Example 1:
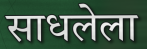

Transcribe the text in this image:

साधलेला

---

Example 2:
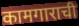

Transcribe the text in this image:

कामगाराची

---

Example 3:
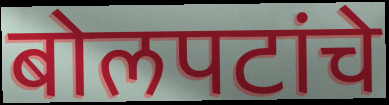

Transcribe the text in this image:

बोलपटांचे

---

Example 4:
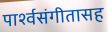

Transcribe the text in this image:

पार्श्वसंगीतासह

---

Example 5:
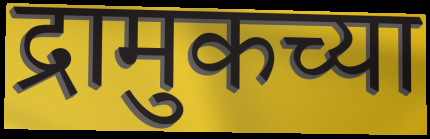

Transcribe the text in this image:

द्रामुकच्या